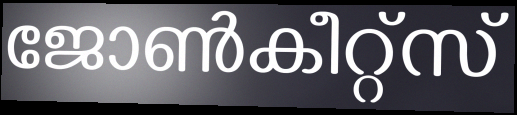
ജോൺകീറ്റ്സ്